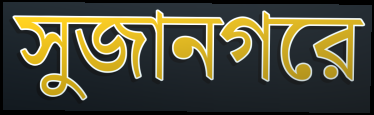
সুজানগরে